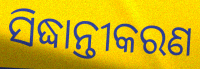
ସିଦ୍ଧାନ୍ତୀକରଣ